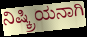
ನಿಷ್ಕ್ರಿಯನಾಗಿ